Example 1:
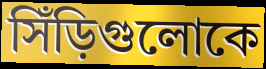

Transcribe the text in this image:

সিঁড়িগুলোকে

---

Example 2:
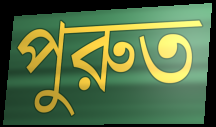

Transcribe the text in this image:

পুরুত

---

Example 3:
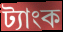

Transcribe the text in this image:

ট্যাংক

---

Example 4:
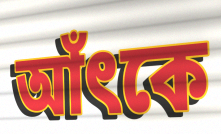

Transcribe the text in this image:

আঁৎকে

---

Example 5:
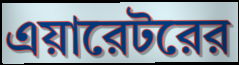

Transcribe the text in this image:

এয়ারেটরের